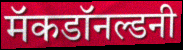
मॅकडॉनल्डनी